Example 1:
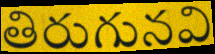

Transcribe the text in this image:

తిరుగునవి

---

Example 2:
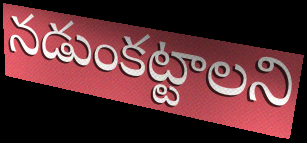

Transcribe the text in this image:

నడుంకట్టాలని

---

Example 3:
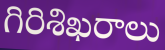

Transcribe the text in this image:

గిరిశిఖరాలు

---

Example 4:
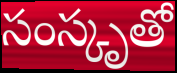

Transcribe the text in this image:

సంస్కృతో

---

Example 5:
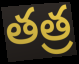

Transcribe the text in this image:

తత్ర